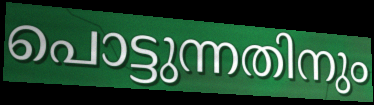
പൊട്ടുന്നതിനും